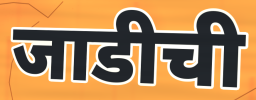
जाडीची